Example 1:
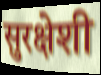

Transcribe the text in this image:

सुरक्षेशी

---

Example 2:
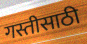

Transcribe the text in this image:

गस्तीसाठी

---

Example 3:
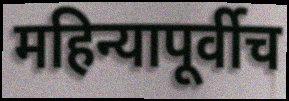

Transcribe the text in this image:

महिन्यापूर्वीच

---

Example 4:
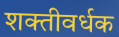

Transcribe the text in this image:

शक्तीवर्धक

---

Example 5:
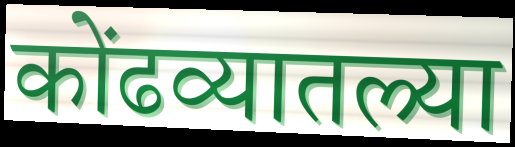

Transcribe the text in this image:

कोंढव्यातल्या